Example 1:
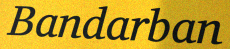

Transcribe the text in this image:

Bandarban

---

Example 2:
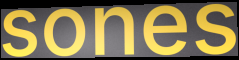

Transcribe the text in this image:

sones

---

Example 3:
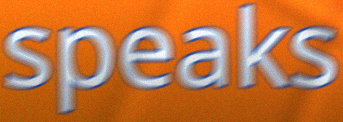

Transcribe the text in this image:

speaks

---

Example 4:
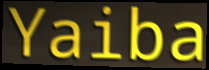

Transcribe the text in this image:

Yaiba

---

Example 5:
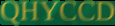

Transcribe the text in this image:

QHYCCD